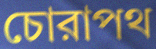
চোরাপথ